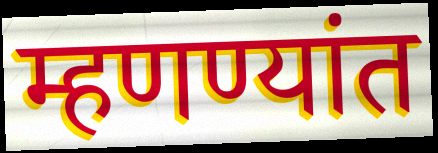
म्हणण्यांत